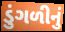
ડુંગળીનું